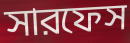
সারফেস